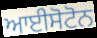
ਆਈਸੋਟੋਨ